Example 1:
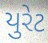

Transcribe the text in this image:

યુરેટ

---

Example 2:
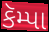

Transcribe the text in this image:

કૅમ્પા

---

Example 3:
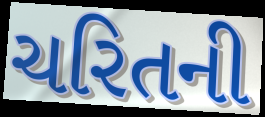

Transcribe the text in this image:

ચરિતની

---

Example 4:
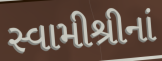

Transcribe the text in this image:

સ્વામીશ્રીનાં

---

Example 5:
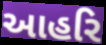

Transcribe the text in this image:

આહરિ